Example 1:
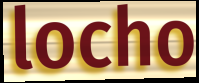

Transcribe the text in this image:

locho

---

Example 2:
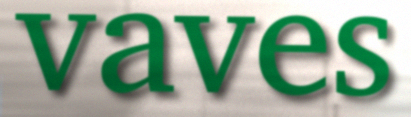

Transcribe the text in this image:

vaves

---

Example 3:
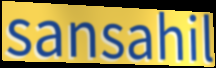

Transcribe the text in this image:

sansahil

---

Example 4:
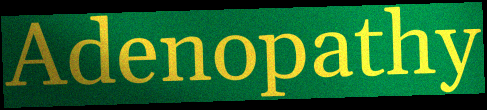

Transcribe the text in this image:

Adenopathy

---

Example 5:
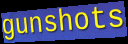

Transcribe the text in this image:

gunshots